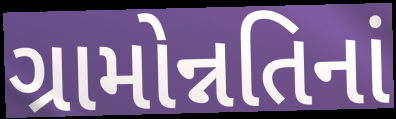
ગ્રામોન્નતિનાં